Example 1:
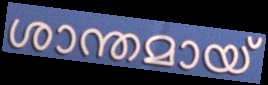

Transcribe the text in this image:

ശാന്തമായ്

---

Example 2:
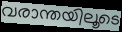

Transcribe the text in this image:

വരാന്തയിലൂടെ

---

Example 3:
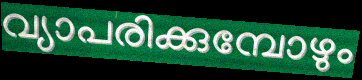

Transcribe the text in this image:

വ്യാപരിക്കുമ്പോഴും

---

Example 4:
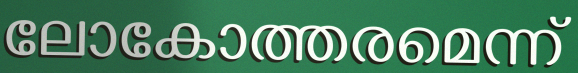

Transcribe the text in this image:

ലോകോത്തരമെന്ന്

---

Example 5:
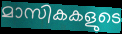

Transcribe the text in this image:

മാസികകളുടെ